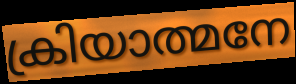
ക്രിയാത്മനേ